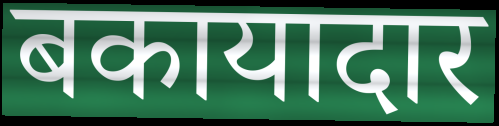
बकायादार